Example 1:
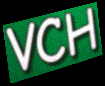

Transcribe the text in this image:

VCH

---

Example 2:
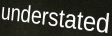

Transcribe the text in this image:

understated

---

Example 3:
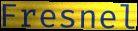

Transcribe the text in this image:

Fresnel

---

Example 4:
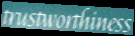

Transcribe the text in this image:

trustworthiness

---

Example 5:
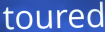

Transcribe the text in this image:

toured